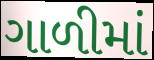
ગાળીમાં